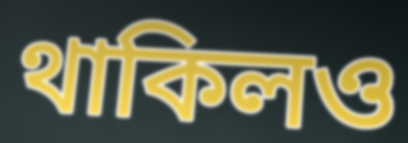
থাকিলও